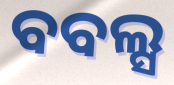
ବବଲ୍ସ